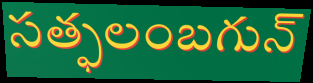
సత్ఫలంబగున్